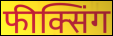
फीक्सिंग